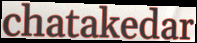
chatakedar